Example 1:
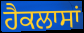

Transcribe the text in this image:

ਹੈਕਲਾਸਾਂ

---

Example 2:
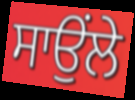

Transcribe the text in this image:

ਸਾਉਂਲੇ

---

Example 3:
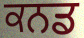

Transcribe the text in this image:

ਕਨਡ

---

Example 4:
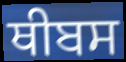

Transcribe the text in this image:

ਥੀਬਸ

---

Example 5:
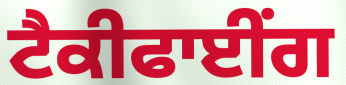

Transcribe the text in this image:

ਟੈਕੀਫਾਈਂਗ